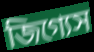
জিগ্যেস